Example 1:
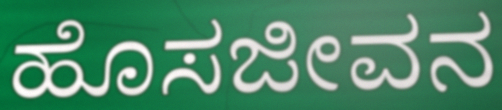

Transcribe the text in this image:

ಹೊಸಜೀವನ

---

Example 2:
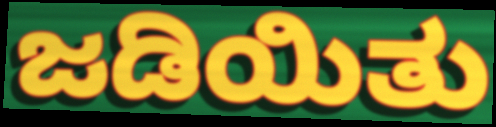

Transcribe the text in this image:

ಜಡಿಯಿತು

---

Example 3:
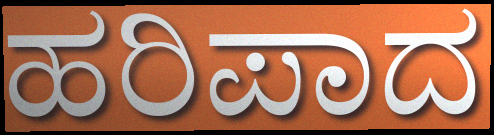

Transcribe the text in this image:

ಹರಿಪಾದ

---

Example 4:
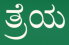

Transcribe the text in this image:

ತ್ರೆಯ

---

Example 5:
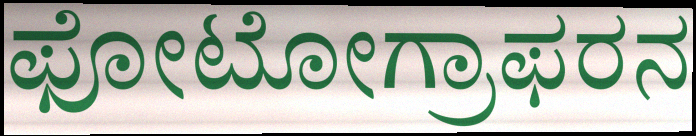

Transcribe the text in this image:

ಫೋಟೋಗ್ರಾಫರನ